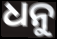
ଧନୁ